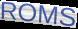
ROMS